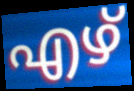
എഴ്